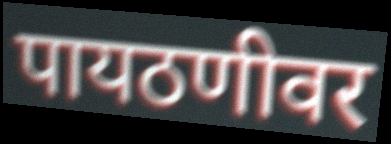
पायठणीवर